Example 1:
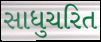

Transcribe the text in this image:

સાધુચરિત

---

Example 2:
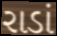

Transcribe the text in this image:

રાડાં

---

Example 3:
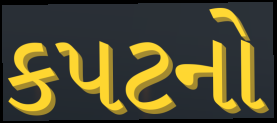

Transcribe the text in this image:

કપટનો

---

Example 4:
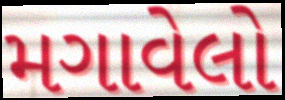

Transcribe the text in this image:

મગાવેલો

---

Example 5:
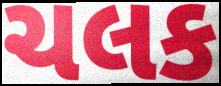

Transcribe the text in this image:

ચલક